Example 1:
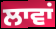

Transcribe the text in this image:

ਲਾਵਾਂ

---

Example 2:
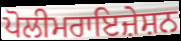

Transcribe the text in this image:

ਪੋਲੀਮਰਾਇਜ਼ੇਸ਼ਨ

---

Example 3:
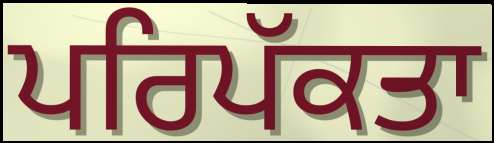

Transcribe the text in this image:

ਪਰਿਪੱਕਤਾ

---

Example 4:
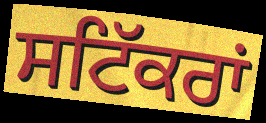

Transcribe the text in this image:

ਸਟਿੱਕਰਾਂ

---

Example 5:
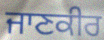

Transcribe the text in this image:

ਜਾਣਕੀਰ